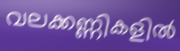
വലക്കണ്ണികളിൽ